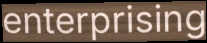
enterprising